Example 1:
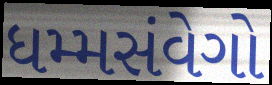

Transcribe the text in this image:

ધમ્મસંવેગો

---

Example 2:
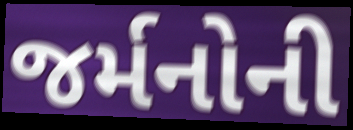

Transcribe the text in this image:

જર્મનોની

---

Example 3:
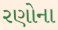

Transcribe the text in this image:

રણોના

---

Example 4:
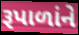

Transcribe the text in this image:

રૂપાળાંને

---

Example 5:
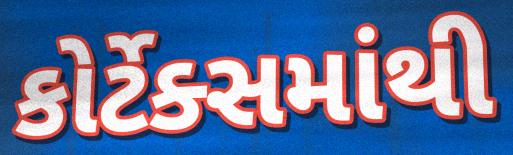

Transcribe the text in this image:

કોર્ટેક્સમાંથી